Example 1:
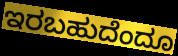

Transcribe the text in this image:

ಇರಬಹುದೆಂದೂ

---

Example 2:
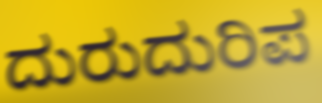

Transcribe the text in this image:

ದುರುದುರಿಪ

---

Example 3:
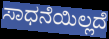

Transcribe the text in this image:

ಸಾಧನೆಯಿಲ್ಲದೆ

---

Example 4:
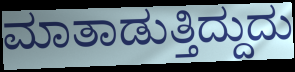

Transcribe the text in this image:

ಮಾತಾಡುತ್ತಿದ್ದುದು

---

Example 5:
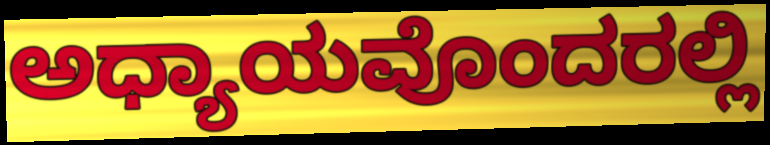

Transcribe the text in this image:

ಅಧ್ಯಾಯವೊಂದರಲ್ಲಿ